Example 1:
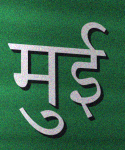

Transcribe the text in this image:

मुई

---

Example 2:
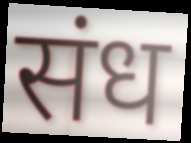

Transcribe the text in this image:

संध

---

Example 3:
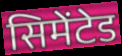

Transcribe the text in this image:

सिमेंटेड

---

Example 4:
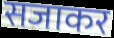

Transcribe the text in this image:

सजाकर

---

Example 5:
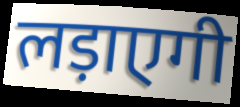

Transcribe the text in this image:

लड़ाएगी